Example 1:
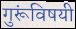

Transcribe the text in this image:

गुरूंविषयी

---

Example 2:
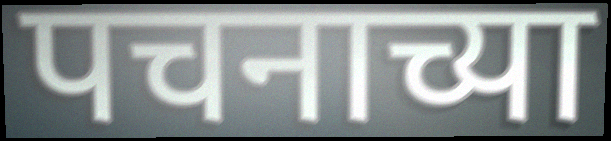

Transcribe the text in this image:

पचनाच्या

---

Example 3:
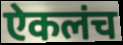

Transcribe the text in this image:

ऐकलंच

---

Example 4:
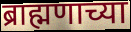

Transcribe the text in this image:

ब्राह्मणाच्या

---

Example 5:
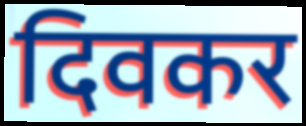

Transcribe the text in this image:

दिवकर